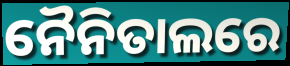
ନୈନିତାଲରେ